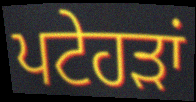
ਪਟੇਹੜਾਂ